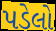
પડેલો